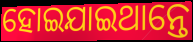
ହୋଇଯାଇଥାନ୍ତେ